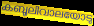
കബൂലിവാലയോടു